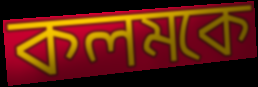
কলমকে